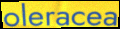
oleracea